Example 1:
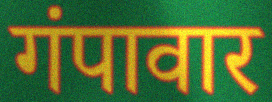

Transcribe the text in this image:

गंपावार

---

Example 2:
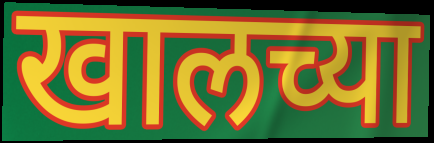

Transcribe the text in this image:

खालच्या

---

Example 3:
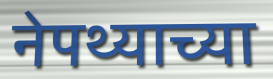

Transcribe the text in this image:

नेपथ्याच्या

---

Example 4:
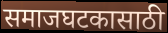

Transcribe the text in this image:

समाजघटकासाठी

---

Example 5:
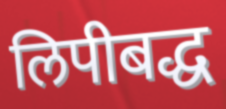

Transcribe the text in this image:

लिपीबद्ध